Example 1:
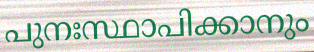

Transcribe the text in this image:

പുനഃസ്ഥാപിക്കാനും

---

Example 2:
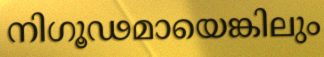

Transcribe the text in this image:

നിഗൂഢമായെങ്കിലും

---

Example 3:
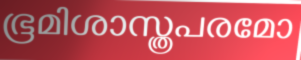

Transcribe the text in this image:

ഭൂമിശാസ്ത്രപരമോ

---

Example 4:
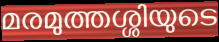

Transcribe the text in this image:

മരമുത്തശ്ശിയുടെ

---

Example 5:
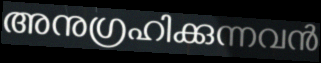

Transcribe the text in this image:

അനുഗ്രഹിക്കുന്നവൻ